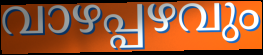
വാഴപ്പഴവും